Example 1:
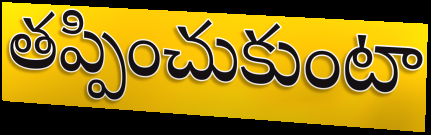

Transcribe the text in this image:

తప్పించుకుంటా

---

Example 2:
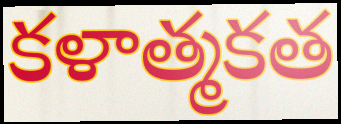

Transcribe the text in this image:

కళాత్మకత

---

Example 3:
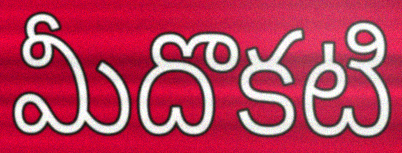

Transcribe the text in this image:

మీదొకటి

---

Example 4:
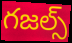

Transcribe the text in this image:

గజల్స్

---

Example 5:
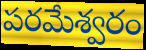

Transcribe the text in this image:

పరమేశ్వరం